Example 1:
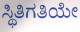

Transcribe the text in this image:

ಸ್ಥಿತಿಗತಿಯೇ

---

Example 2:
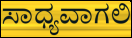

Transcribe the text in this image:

ಸಾಧ್ಯವಾಗಲಿ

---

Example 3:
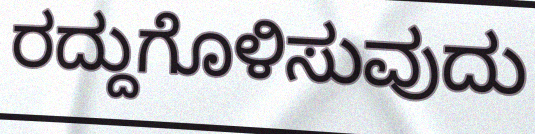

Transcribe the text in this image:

ರದ್ದುಗೊಳಿಸುವುದು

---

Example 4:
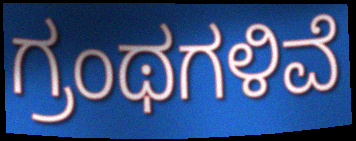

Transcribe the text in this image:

ಗ್ರಂಥಗಳಿವೆ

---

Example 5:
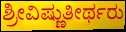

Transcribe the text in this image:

ಶ್ರೀವಿಷ್ಣುತೀರ್ಥರು